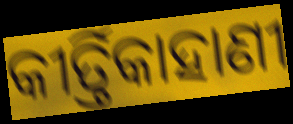
କୀର୍ତ୍ତିକାହାଣୀ